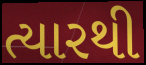
ત્યારથી